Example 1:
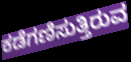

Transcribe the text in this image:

ಕಡೆಗಣಿಸುತ್ತಿರುವ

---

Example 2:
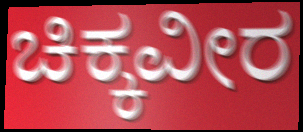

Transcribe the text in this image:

ಚಿಕ್ಕವೀರ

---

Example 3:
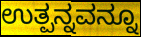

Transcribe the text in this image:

ಉತ್ಪನ್ನವನ್ನೂ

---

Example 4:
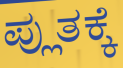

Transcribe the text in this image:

ಪ್ಲುತಕ್ಕೆ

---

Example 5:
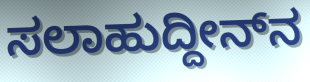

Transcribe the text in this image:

ಸಲಾಹುದ್ದೀನ್‍ನ